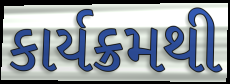
કાર્યક્રમથી